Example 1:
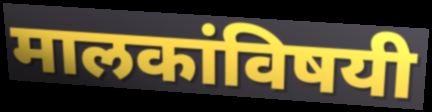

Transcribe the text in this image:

मालकांविषयी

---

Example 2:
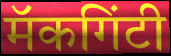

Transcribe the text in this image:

मॅकगिंटी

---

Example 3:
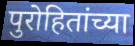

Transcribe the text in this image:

पुरोहितांच्या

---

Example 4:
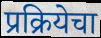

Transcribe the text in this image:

प्रक्रियेचा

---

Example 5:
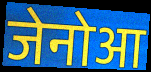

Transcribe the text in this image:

जेनोआ